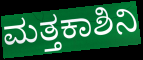
ಮತ್ತಕಾಶಿನಿ